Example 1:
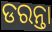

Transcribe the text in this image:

ଡରନ୍ତା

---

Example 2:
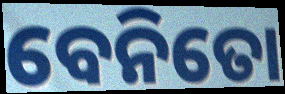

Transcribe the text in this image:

ବେନିତୋ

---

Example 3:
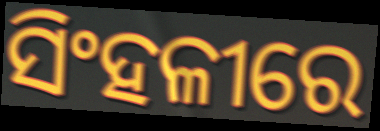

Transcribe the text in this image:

ସିଂହଳୀରେ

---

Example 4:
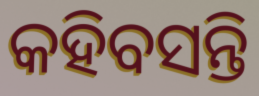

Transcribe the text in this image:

କହିବସନ୍ତି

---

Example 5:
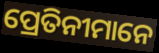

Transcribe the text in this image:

ପ୍ରେତିନୀମାନେ